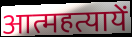
आत्महत्यायें